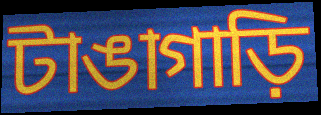
টাঙাগাড়ি